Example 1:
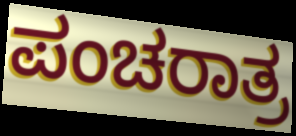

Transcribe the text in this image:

ಪಂಚರಾತ್ರ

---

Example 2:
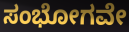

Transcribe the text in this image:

ಸಂಭೋಗವೇ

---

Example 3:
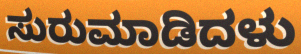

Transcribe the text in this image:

ಸುರುಮಾಡಿದಳು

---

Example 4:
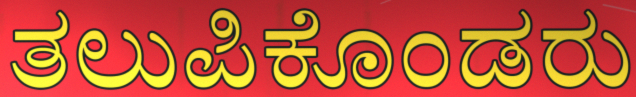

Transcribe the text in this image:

ತಲುಪಿಕೊಂಡರು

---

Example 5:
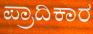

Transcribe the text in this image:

ಪ್ರಾದಿಕಾರ